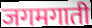
जगमगाती